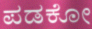
ಪಡಕೋ